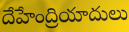
దేహేంద్రియాదులు